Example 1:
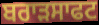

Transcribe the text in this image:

ਬਰਾੜਸਾਫਟ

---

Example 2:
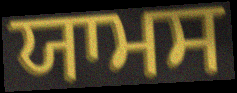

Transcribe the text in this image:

ਯਾਮਸ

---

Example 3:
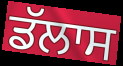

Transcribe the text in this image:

ਡੱਲਾਸ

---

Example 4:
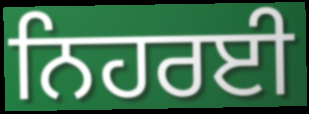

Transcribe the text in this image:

ਨਿਹਰਈ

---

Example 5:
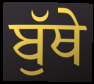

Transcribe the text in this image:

ਬੁੱਥੇ